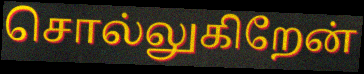
சொல்லுகிறேன்